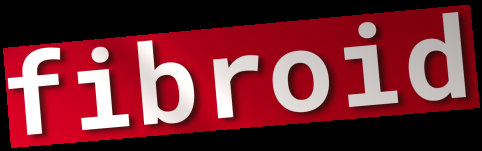
fibroid